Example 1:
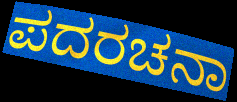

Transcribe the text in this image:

ಪದರಚನಾ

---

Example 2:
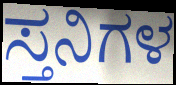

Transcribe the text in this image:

ಸ್ತನಿಗಳ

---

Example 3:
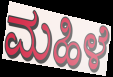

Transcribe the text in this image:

ಮಹಿಳೆ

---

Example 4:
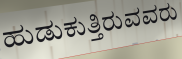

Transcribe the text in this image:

ಹುಡುಕುತ್ತಿರುವವರು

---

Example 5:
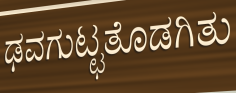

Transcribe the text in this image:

ಢವಗುಟ್ಟತೊಡಗಿತು